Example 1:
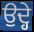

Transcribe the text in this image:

ਉਦ੍ਹੇ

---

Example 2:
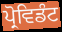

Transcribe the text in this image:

ਪ੍ਰੋਵਿਡੰਟ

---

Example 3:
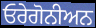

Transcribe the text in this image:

ਓਰੇਗੋਨੀਅਨ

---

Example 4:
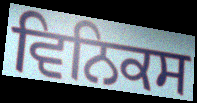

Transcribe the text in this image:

ਵਿਨਿਕਸ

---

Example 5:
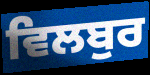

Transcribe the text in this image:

ਵਿਲਬੁਰ